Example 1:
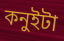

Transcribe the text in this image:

কনুইটা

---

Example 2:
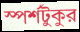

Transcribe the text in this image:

স্পর্শটুকুর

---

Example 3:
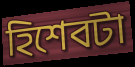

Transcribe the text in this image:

হিশেবটা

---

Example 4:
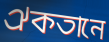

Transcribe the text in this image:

ঐকতানে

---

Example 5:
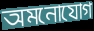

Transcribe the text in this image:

অমনোযোগ